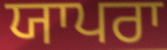
ਯਾਪਰਾ